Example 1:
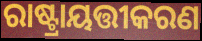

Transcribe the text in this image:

ରାଷ୍ଟ୍ରାୟତ୍ତୀକରଣ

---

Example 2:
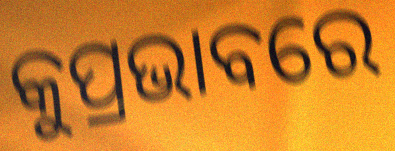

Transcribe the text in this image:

କୁପ୍ରଭାବରେ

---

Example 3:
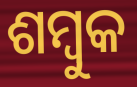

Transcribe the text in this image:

ଶମ୍ବୁକ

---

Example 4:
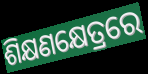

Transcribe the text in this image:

ଶିକ୍ଷଣକ୍ଷେତ୍ରରେ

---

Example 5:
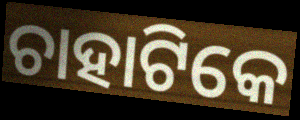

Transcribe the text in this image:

ଚାହାଟିକେ